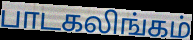
பாடகலிங்கம்